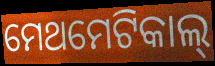
ମେଥମେଟିକାଲ୍